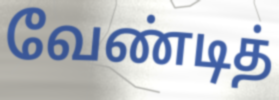
வேண்டித்